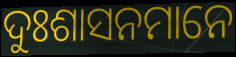
ଦୁଃଶାସନମାନେ